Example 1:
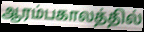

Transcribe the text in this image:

ஆரம்பகாலத்தில்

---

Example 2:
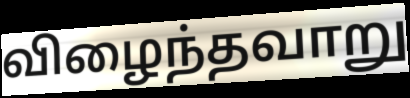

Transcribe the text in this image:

விழைந்தவாறு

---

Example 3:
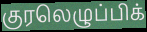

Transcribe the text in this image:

குரலெழுப்பிக்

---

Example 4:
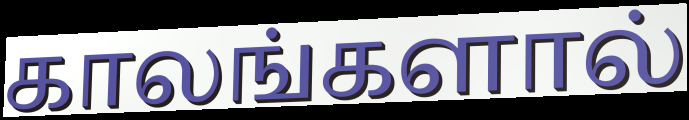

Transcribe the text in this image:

காலங்களால்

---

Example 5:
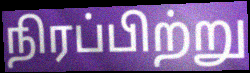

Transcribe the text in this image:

நிரப்பிற்று